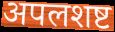
अपलशष्ट